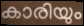
കാരിയും